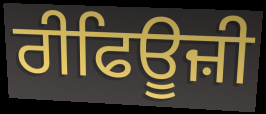
ਰੀਫਿਊਜ਼ੀ